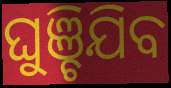
ଘୁଞ୍ଚିଯିବ